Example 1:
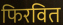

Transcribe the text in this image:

फिरवित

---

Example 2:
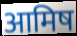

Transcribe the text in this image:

आमिष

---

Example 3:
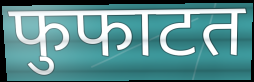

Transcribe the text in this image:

फुफाटत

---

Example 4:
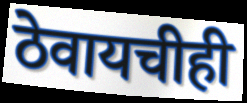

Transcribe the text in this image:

ठेवायचीही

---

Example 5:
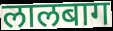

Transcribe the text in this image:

लालबाग